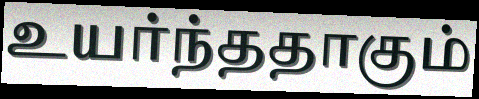
உயர்ந்ததாகும்